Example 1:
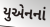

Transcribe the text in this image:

યુએનનાં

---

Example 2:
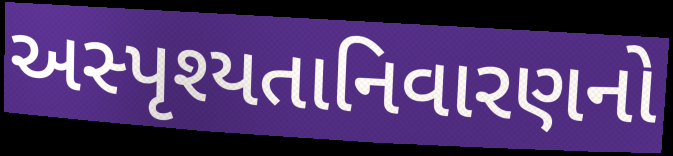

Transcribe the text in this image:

અસ્પૃશ્યતાનિવારણનો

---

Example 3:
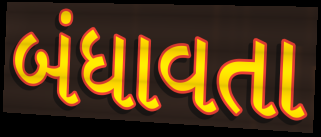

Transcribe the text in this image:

બંધાવતા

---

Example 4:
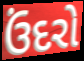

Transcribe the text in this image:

ઉંદરો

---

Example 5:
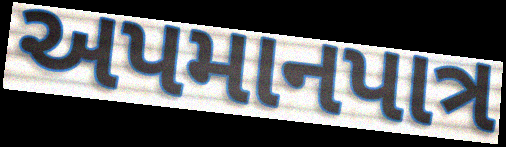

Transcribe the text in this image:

અપમાનપાત્ર